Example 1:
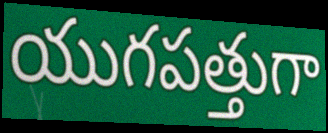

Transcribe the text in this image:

యుగపత్తుగా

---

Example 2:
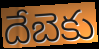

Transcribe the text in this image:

దేబెకు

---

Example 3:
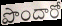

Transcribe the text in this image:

పొందారో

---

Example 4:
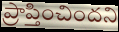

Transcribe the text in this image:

ప్రాప్తించిందని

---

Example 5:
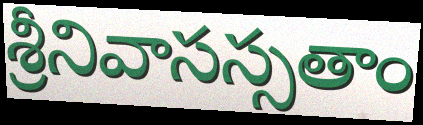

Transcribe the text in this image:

శ్రీనివాసస్సతాం